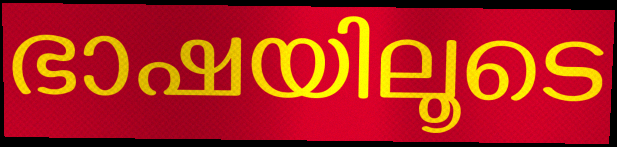
ഭാഷയിലൂടെ